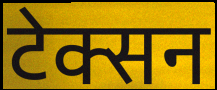
टेक्सन